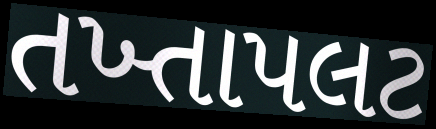
તખ્તાપલટ